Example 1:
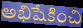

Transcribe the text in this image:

అభిషేకించి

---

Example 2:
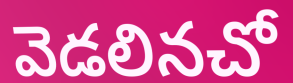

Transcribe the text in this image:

వెడలినచో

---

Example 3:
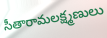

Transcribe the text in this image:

సీతారామలక్ష్మణులు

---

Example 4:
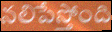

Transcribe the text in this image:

నలిపేస్తోంది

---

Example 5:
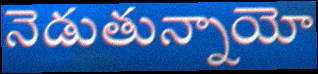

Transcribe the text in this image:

నెడుతున్నాయో